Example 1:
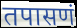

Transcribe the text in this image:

तपासणं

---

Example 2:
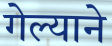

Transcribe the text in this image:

गेल्‍याने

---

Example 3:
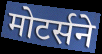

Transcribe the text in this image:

मोटर्सने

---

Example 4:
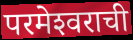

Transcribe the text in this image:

परमेश्‍वराची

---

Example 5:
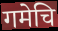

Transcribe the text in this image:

गमेचि